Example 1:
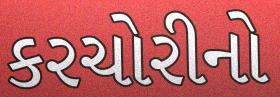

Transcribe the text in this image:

કરચોરીનો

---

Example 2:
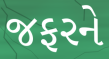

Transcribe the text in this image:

જફરને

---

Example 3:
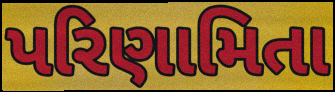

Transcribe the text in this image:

પરિણામિતા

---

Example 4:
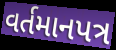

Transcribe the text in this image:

વર્તમાનપત્ર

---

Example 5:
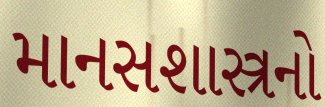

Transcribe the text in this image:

માનસશાસ્ત્રનો